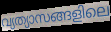
വ്യത്യാസങ്ങളിലെ